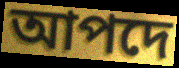
আপদে